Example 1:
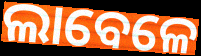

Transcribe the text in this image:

ଲାବେଳେ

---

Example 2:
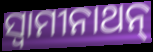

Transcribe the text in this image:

ସ୍ବାମୀନାଥନ୍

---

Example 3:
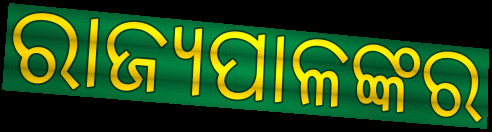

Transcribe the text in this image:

ରାଜ୍ୟପାଳଙ୍କର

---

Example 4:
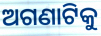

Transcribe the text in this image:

ଅଗଣାଟିକୁ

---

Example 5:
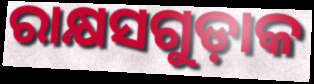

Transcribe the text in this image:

ରାକ୍ଷସଗୁଡ଼ାକ